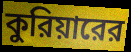
কুরিয়ারের